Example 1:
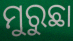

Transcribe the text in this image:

ମୁରୁଛା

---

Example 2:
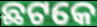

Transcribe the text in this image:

ଛଟକେ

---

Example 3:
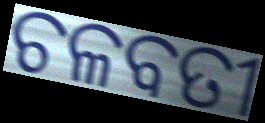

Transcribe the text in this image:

ଚଳବତୀ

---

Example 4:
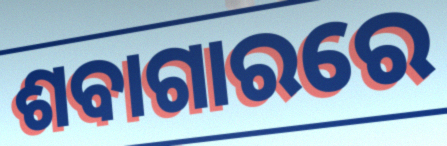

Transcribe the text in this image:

ଶବାଗାରରେ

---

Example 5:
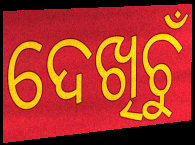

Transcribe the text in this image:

ଦେଖିଚୁଁ